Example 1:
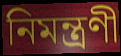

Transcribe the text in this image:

নিমন্ত্ৰণী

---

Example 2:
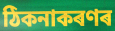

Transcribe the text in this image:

ঠিকনাকৰণৰ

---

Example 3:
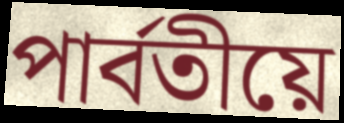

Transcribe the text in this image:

পাৰ্বতীয়ে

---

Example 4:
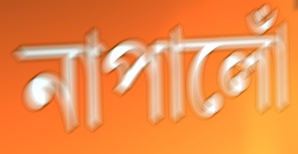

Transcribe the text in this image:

নাপালোঁ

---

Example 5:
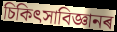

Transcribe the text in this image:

চিকিৎসাবিজ্ঞানৰ